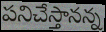
పనిచేస్తానన్న